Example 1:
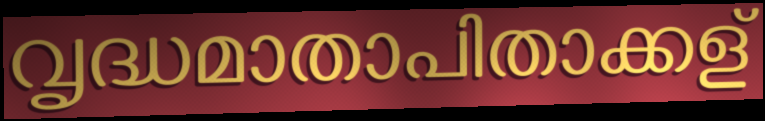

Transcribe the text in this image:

വൃദ്ധമാതാപിതാക്കള്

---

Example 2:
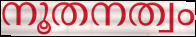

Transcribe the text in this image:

നൂതനത്വം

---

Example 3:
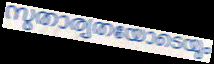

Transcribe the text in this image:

സുതാര്യതയോടെയും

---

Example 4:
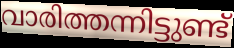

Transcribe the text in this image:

വാരിത്തന്നിട്ടുണ്ട്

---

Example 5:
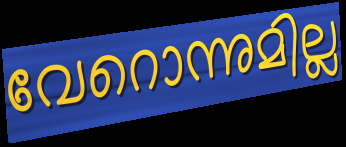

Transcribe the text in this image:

വേറൊന്നുമില്ല